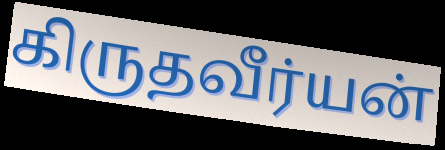
கிருதவீர்யன்